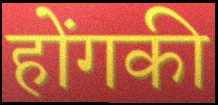
होंगकी